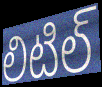
లిటిల్